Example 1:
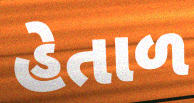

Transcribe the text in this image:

હેતાળ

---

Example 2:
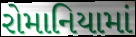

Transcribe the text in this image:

રોમાનિયામાં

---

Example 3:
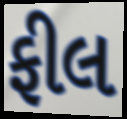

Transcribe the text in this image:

ફીલ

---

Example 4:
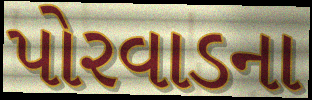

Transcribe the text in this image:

પોરવાડના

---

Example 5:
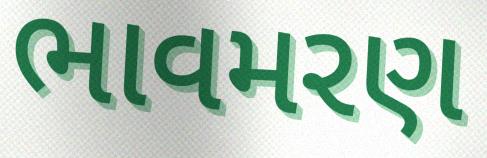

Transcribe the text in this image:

ભાવમરણ